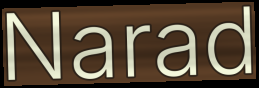
Narad